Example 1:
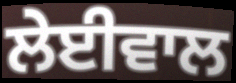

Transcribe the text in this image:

ਲੇਈਵਾਲ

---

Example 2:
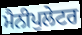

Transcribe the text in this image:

ਮੈਨੀਪੁਲੇਟਰ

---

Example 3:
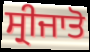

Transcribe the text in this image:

ਸ੍ਰੀਜਾਤੋ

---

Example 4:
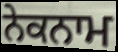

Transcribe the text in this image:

ਨੇਕਨਾਮ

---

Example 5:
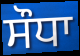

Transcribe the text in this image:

ਸੌਧਾ